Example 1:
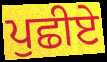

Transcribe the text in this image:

ਪੁਛੀਏ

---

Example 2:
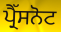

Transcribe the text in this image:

ਪ੍ਰੈੱਸਨੋਟ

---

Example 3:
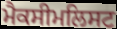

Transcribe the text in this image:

ਮੈਕਸੀਮਲਿਸਟ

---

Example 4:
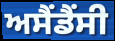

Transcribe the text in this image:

ਅਸੈਂਡੈਂਸੀ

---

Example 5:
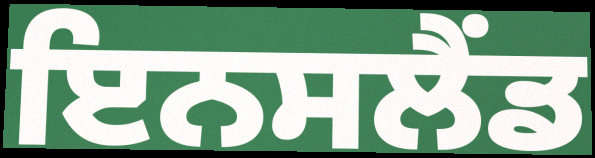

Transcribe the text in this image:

ਇਨਸਲੈਂਡ